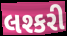
લશ્કરી